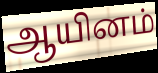
ஆயினம்